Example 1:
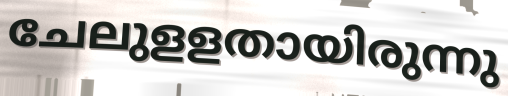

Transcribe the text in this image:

ചേലുളളതായിരുന്നു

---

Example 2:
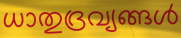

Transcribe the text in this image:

ധാതുദ്രവ്യങ്ങൾ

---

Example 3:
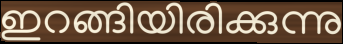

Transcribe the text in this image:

ഇറങ്ങിയിരിക്കുന്നു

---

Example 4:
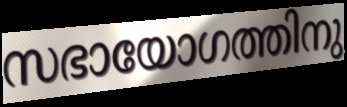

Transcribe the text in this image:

സഭായോഗത്തിനു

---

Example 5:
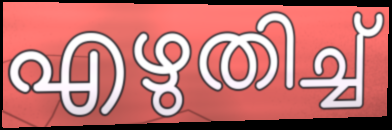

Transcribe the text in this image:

എഴുതിച്ച്